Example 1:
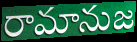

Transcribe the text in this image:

రామానుజ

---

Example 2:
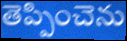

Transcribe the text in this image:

తెప్పించెను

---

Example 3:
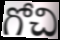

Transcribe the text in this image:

గోచి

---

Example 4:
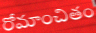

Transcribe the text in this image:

రోమాంచితం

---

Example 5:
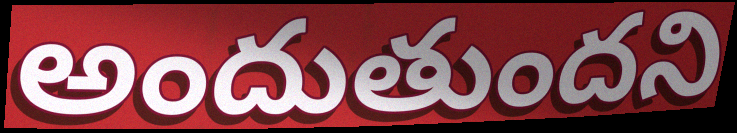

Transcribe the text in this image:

అందుతుందని